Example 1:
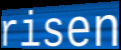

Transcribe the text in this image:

risen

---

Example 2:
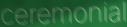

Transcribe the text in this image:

ceremonial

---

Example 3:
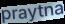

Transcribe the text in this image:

praytna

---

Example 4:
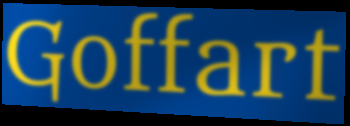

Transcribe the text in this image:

Goffart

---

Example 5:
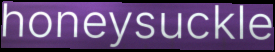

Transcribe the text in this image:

honeysuckle